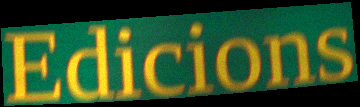
Edicions